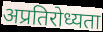
अप्रतिरोध्यता